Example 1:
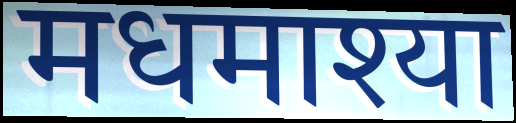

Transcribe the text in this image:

मधमाश्या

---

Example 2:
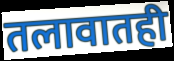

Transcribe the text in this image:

तलावातही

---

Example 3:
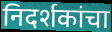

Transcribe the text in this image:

निदर्शकांचा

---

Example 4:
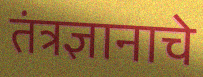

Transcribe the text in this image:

तंत्रज्ञानाचे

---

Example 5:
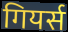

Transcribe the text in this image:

गियर्स